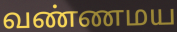
வண்ணமய